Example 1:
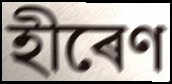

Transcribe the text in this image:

হীৰেণ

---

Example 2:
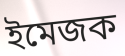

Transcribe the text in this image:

ইমেজক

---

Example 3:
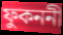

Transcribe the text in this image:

ফুকননী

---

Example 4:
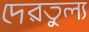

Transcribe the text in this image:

দেৱতুল্য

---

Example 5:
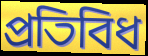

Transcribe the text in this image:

প্ৰতিবিধ